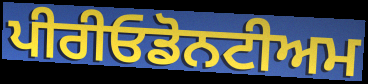
ਪੀਰੀਓਡੋਨਟੀਅਮ